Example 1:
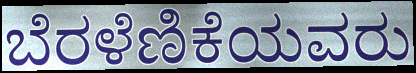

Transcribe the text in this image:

ಬೆರಳೆಣಿಕೆಯವರು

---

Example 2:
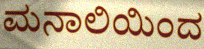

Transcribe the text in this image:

ಮನಾಲಿಯಿಂದ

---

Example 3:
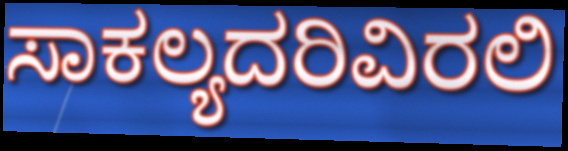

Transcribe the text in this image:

ಸಾಕಲ್ಯದರಿವಿರಲಿ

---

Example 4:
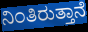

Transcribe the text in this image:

ನಿಂತಿರುತ್ತಾನೆ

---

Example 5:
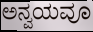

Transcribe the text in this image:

ಅನ್ವಯವೂ